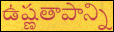
ఉష్ణతాపాన్ని